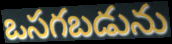
ఒసగబడును